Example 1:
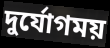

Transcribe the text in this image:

দুর্যোগময়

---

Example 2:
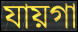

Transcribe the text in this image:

যায়গা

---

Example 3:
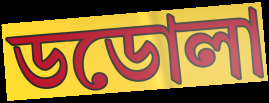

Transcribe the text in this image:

ডডোলা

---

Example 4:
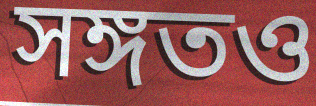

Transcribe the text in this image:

সঙ্গতও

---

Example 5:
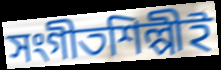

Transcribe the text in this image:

সংগীতশিল্পীই